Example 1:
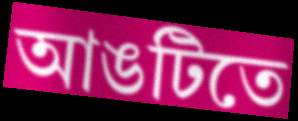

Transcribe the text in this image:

আঙটিতে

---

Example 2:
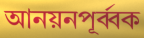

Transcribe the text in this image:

আনয়নপূর্ব্বক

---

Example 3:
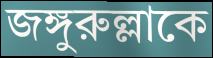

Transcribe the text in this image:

জঙ্গুরুল্লাকে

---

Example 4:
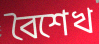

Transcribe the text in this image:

বৈশেখ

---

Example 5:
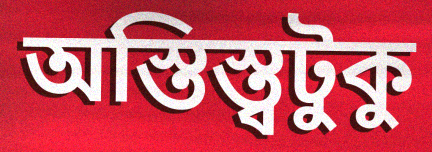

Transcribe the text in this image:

অস্তিস্ত্বটুকু